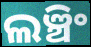
ଲଞ୍ଚିଂ